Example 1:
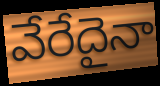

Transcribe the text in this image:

వేరేదైనా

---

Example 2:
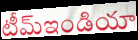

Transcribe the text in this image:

టీమ్ఇండియా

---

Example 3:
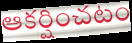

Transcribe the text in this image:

ఆకర్షించటం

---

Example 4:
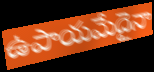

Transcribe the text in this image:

ఉపాయమేదైనా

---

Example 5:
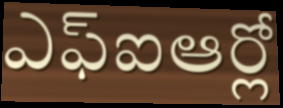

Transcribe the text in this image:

ఎఫ్ఐఆర్లో